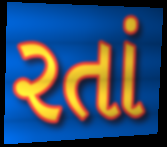
રતાં